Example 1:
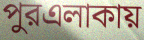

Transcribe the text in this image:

পুরএলাকায়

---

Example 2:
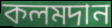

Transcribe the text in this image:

কলমদান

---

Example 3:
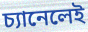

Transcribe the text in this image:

চ্যানেলেই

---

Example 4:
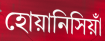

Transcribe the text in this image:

হোয়ানিসিয়াঁ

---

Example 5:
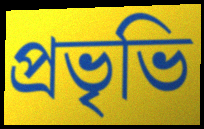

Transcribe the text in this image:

প্রভৃভি